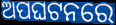
ଅପଘଟନରେ